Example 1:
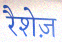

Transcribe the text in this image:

रैशेज़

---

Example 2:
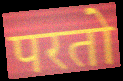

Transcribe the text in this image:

परतो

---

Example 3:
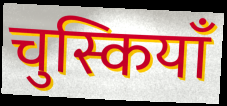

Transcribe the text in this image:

चुस्कियाँ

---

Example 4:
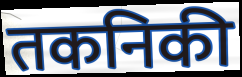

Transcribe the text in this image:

तकनिकी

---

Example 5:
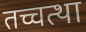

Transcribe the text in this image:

तच्चत्था